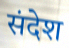
संदेश